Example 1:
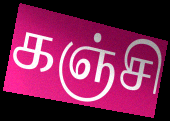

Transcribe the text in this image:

கஞ்சி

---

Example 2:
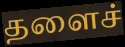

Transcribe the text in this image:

தளைச்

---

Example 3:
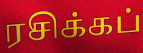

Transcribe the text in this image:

ரசிக்கப்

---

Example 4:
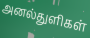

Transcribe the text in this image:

அனல்துளிகள்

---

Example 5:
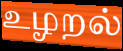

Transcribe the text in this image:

உழறல்